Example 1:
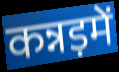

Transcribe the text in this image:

कन्नड़में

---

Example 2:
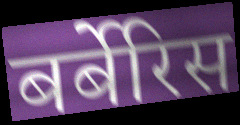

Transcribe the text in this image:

बर्बेरिस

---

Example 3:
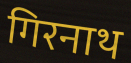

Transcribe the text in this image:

गिरनाथ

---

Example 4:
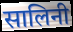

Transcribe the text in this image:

सालिनी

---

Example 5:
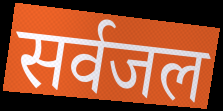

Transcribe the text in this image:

सर्वजल